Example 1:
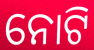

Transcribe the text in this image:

ନୋଟି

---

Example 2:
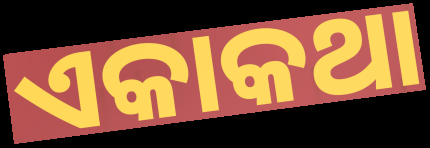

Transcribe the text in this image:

ଏକାକଥା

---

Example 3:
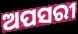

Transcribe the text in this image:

ଅପସରୀ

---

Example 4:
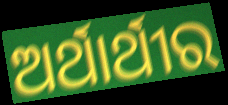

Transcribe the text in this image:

ଅର୍ଥାର୍ଥୀର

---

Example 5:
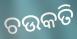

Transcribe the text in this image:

ଚଉକତି